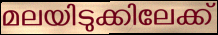
മലയിടുക്കിലേക്ക്